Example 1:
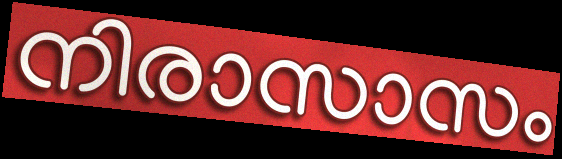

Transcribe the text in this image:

നിരാസാസം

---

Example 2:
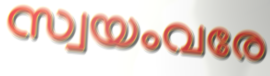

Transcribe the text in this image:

സ്വയംവരേ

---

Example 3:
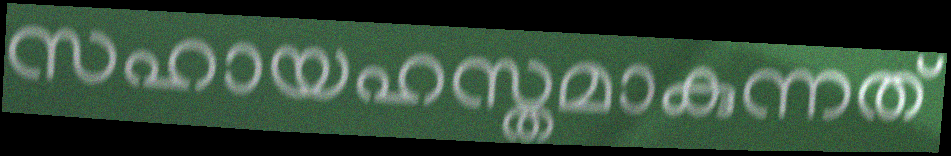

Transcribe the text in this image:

സഹായഹസ്തമാകുന്നത്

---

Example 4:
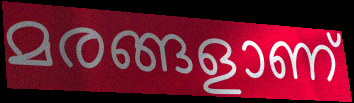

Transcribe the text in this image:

മരങ്ങളാണ്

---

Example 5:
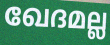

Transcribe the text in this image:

ഖേദമല്ല